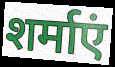
शर्माएं